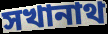
সখানাথ